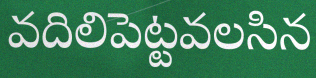
వదిలిపెట్టవలసిన